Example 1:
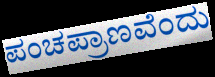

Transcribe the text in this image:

ಪಂಚಪ್ರಾಣವೆಂದು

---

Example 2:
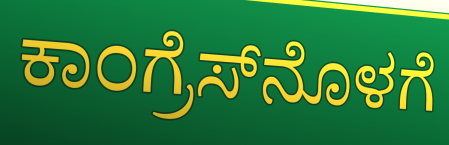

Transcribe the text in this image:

ಕಾಂಗ್ರೆಸ್‌ನೊಳಗೆ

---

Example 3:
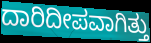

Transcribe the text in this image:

ದಾರಿದೀಪವಾಗಿತ್ತು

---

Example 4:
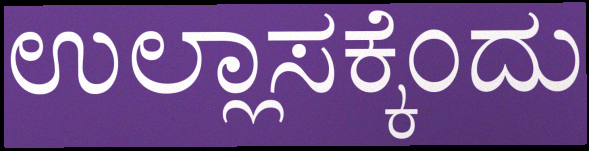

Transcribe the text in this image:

ಉಲ್ಲಾಸಕ್ಕೆಂದು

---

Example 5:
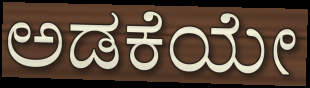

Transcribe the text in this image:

ಅಡಕೆಯೇ